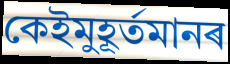
কেইমুহূৰ্তমানৰ